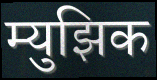
म्युझिक